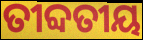
ତୀବ୍ଦତୀୟ